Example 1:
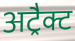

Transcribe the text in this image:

अट्रैक्ट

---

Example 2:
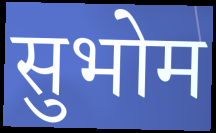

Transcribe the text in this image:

सुभोम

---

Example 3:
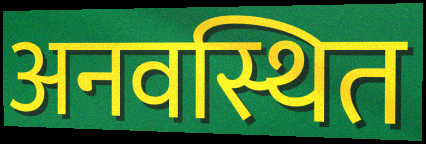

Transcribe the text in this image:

अनवस्थित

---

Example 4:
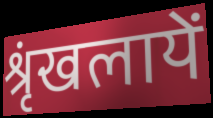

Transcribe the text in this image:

श्रृंखलायें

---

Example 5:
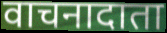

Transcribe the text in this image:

वाचनादाता